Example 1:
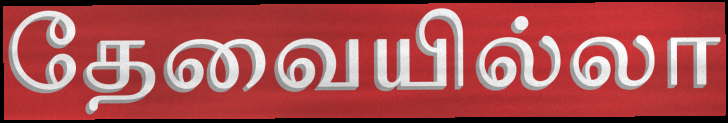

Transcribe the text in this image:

தேவையில்லா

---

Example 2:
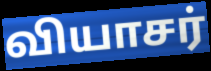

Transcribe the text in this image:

வியாசர்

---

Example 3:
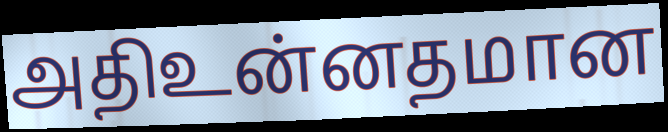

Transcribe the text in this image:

அதிஉன்னதமான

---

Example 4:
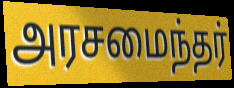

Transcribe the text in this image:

அரசமைந்தர்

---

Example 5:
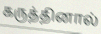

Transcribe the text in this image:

கருத்தினால்